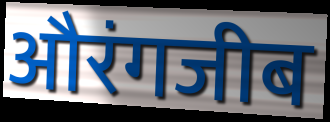
औरंगजीब